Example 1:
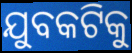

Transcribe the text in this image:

ଯୁବକଟିକୁ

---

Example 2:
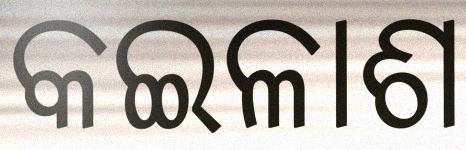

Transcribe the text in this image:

କଇଳାଶ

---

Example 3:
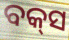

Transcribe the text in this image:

ବକ୍‍ସ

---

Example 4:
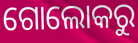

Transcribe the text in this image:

ଗୋଲୋକରୁ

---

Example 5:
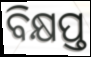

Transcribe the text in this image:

ବିକ୍ଷପ୍ତ